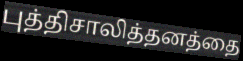
புத்திசாலித்தனத்தை